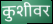
कुशीवर